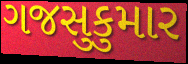
ગજસુકુમાર